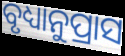
ବୃଧ୍ୟାନୁପ୍ରାସ